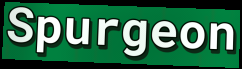
Spurgeon